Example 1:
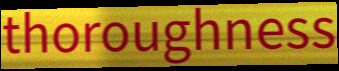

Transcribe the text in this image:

thoroughness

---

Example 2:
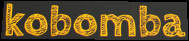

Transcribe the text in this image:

kobomba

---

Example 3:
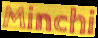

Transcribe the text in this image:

Minchi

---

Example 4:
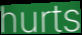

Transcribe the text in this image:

hurts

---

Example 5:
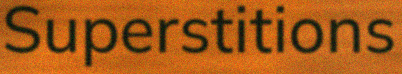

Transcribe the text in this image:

Superstitions